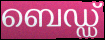
ബെഡ്ഡ്